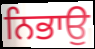
ਨਿਭਾਉ